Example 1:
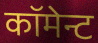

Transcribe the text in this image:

कॉमेन्ट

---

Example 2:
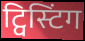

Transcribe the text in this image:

ट्विस्टिंग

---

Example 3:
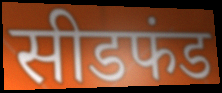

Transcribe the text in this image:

सीडफंड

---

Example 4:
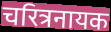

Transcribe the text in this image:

चरित्रनायक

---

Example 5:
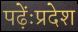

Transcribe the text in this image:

पढ़ेंःप्रदेश